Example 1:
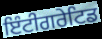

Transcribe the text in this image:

ਇੰਟੀਗਰੇਟਿਡ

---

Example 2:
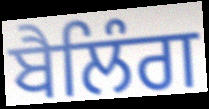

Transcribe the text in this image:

ਬੈਲਿੰਗ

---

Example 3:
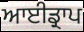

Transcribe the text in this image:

ਆਈਡ੍ਰਾਪ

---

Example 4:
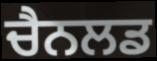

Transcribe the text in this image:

ਚੈਨਲਡ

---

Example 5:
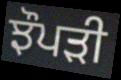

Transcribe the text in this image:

ਝੌਪੜੀ